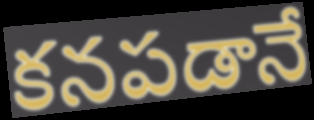
కనపడానే